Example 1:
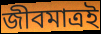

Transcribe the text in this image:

জীবমাত্রই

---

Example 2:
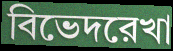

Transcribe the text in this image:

বিভেদরেখা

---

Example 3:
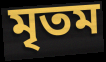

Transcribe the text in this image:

মৃতম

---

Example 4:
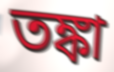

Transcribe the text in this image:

তঙ্কা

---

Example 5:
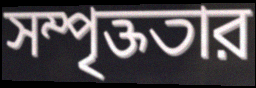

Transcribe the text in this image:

সম্পৃক্ততার